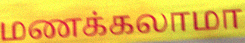
மணக்கலாமா